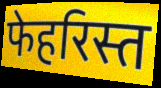
फेहरिस्त